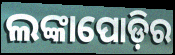
ଲଙ୍କାପୋଡ଼ିର